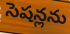
సెషన్లను